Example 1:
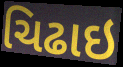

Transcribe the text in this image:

ચિઢાઇ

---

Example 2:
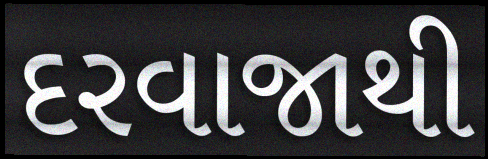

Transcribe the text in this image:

દરવાજાથી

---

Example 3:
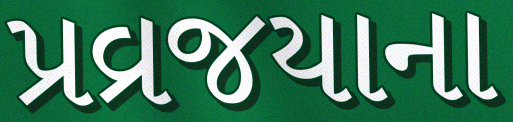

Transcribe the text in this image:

પ્રવ્રજયાના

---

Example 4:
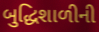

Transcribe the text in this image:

બુદ્ધિશાળીની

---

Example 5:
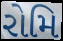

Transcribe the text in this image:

રોમિ